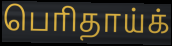
பெரிதாய்க்